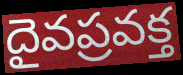
దైవప్రవక్త